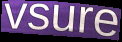
vsure